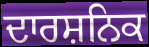
ਦਾਰਸ਼ਨਿਕ